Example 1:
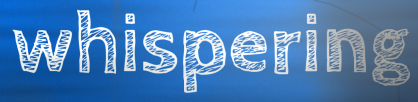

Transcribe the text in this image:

whispering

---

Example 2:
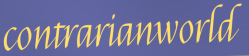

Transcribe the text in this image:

contrarianworld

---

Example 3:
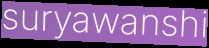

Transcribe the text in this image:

suryawanshi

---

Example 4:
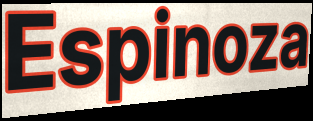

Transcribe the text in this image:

Espinoza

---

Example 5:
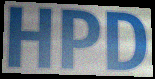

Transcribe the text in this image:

HPD